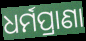
ଧର୍ମପ୍ରାଣା